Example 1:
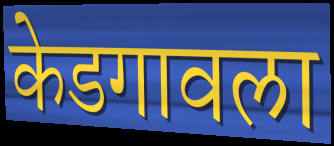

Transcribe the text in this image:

केडगावला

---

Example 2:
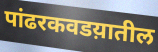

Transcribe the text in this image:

पांढरकवडय़ातील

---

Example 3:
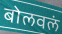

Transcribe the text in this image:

बोलवलं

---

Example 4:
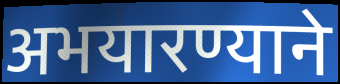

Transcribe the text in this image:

अभयारण्याने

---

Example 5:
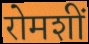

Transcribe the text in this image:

रोमशीं